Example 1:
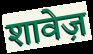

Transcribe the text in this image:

शावेज़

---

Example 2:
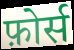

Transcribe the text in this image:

फ़ोर्स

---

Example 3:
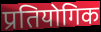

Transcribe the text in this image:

प्रतियोगिक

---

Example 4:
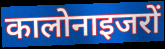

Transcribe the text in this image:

कालोनाइजरों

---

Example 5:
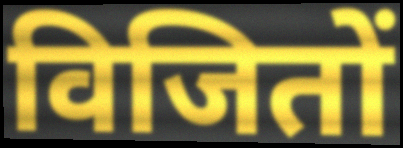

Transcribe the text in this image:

विजितों